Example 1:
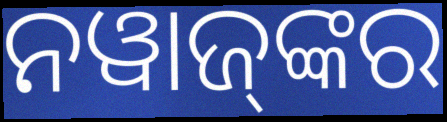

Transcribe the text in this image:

ନୱାଜ୍‍ଙ୍କର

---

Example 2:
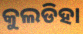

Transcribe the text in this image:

କୁଲଡିହା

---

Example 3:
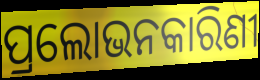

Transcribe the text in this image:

ପ୍ରଲୋଭନକାରିଣୀ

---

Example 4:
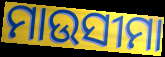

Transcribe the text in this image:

ମାଉସୀମା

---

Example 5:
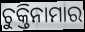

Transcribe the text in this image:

ଚୁକ୍ତିନାମାର